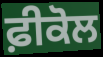
ਫ਼ੀਕੋਲ